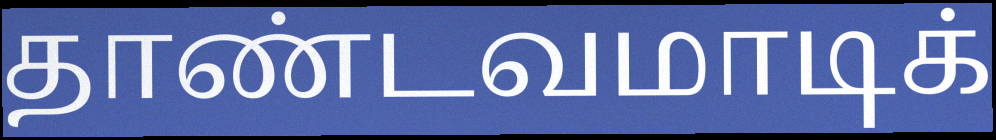
தாண்டவமாடிக்